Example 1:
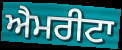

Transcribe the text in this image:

ਐਮਰੀਟਾ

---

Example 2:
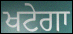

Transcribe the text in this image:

ਖਟੇਗਾ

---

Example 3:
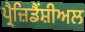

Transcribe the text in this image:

ਪ੍ਰੈਜ਼ਿਡੈਂਸ਼ੀਅਲ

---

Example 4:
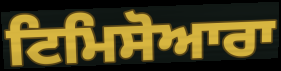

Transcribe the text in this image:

ਟਿਮਿਸੋਆਰਾ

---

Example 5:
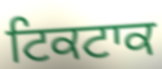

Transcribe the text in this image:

ਟਿਕਟਾਕ